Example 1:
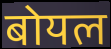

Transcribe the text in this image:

बोयल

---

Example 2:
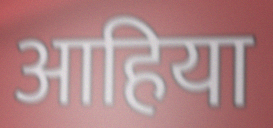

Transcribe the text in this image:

आहिया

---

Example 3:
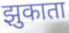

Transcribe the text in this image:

झुकाता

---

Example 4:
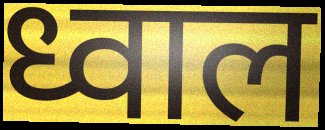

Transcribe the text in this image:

ध्वाल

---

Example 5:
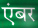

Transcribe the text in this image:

एंबर